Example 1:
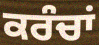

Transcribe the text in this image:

ਕਰੰਚਾਂ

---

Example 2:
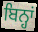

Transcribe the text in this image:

ਬਿਨ੍ਹਾਂ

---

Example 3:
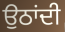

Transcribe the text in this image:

ਉਠਾਂਦੀ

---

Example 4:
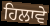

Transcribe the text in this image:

ਹਿਲਾਵੇ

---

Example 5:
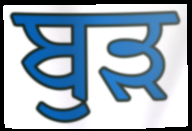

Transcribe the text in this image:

ਬੁੜ